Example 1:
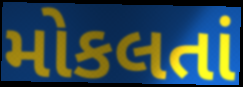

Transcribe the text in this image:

મોકલતાં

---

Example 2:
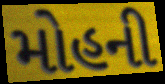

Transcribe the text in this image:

મોહની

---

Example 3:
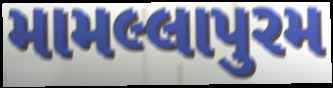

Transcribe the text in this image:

મામલ્લાપુરમ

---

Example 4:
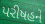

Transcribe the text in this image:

પરીષહને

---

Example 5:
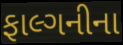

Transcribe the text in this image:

ફાલ્ગનીના